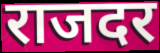
राजदर